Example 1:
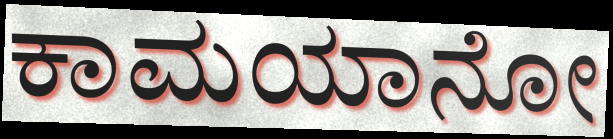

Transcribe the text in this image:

ಕಾಮಯಾನೋ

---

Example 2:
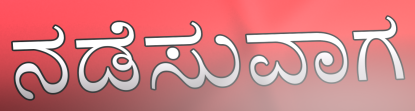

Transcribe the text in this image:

ನಡೆಸುವಾಗ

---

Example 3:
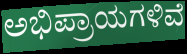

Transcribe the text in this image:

ಅಭಿಪ್ರಾಯಗಳಿವೆ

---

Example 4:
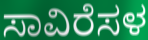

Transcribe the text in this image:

ಸಾವಿರೆಸಳ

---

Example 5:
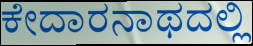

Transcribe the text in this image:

ಕೇದಾರನಾಥದಲ್ಲಿ